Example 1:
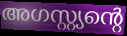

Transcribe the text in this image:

അഗസ്റ്റ്യന്റെ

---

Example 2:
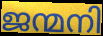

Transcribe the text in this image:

ജന്മനി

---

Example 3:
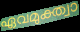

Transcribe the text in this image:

ഏവമുക്ത്വാ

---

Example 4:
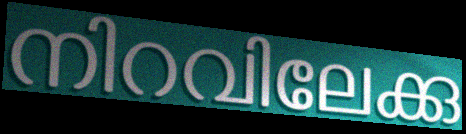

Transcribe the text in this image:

നിറവിലേക്കു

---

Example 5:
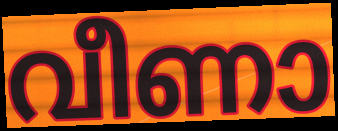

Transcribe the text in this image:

വീണാ